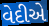
વેદીએ